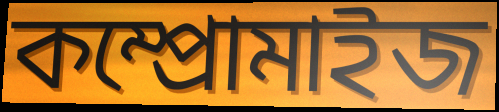
কম্প্রোমাইজ